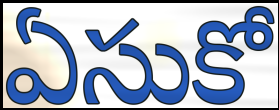
ఏసుకో